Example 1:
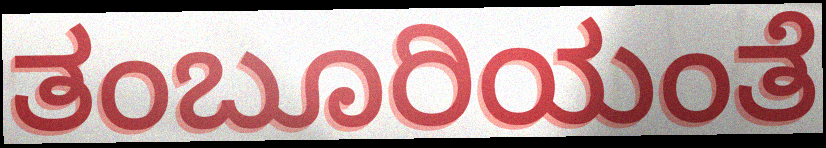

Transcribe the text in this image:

ತಂಬೂರಿಯಂತೆ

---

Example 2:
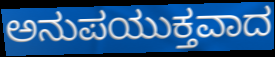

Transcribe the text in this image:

ಅನುಪಯುಕ್ತವಾದ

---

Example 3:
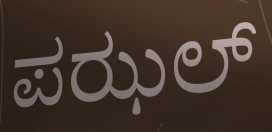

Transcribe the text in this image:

ಪಝಲ್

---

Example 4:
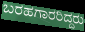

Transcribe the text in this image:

ಬರಹಗಾರರಿದ್ದರು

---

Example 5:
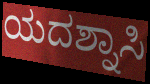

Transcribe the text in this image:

ಯದಶ್ನಾಸಿ